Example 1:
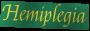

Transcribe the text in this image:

Hemiplegia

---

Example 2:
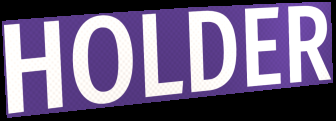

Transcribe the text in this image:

HOLDER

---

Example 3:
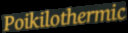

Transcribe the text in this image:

Poikilothermic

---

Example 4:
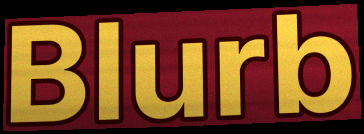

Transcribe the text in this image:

Blurb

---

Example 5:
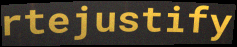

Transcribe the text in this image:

rtejustify